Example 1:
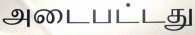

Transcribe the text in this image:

அடைபட்டது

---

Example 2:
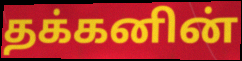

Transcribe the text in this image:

தக்கனின்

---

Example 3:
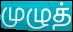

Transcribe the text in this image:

முழுத்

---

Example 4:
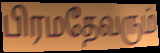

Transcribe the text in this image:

பிரமதேவரும்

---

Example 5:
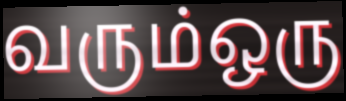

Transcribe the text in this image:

வரும்ஒரு